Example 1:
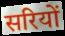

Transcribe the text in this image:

सरियों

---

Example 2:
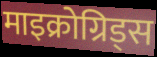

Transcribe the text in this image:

माइक्रोग्रिड्स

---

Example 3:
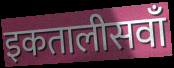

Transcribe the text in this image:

इकतालीसवाँ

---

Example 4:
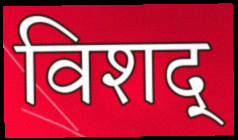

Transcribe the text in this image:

विशद्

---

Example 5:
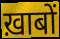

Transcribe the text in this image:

ख़ाबों